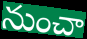
నుంచా